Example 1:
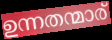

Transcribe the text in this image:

ഉന്നതന്മാര്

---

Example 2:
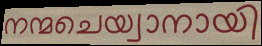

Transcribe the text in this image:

നന്മചെയ്വാനായി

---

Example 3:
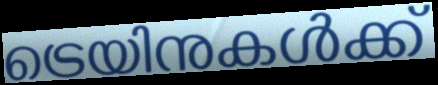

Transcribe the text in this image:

ട്രെയിനുകൾക്ക്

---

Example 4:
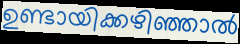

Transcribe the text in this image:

ഉണ്ടായിക്കഴിഞ്ഞാൽ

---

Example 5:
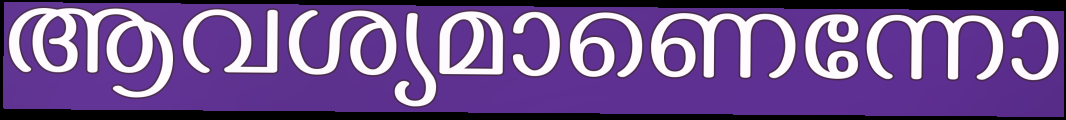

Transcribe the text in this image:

ആവശ്യമാണെന്നോ